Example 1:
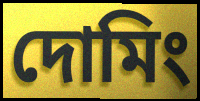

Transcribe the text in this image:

দোমিং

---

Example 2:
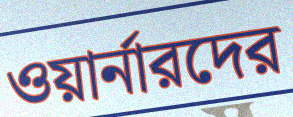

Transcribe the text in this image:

ওয়ার্নারদের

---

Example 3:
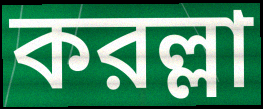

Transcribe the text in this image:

করল্লা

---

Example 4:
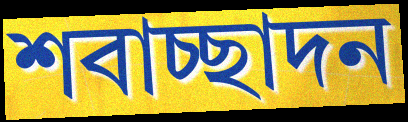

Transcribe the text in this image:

শবাচ্ছাদন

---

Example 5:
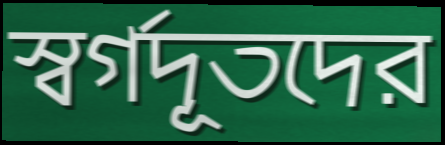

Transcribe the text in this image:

স্বর্গদূতদের